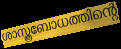
ശാസ്ത്രബോധത്തിന്റെ